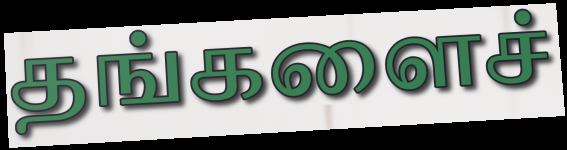
தங்களைச்